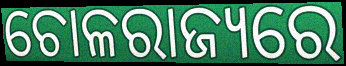
ଚୋଳରାଜ୍ୟରେ